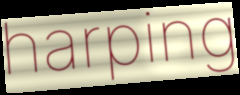
harping